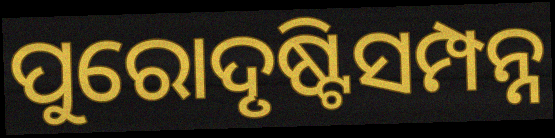
ପୁରୋଦୃଷ୍ଟିସମ୍ପନ୍ନ